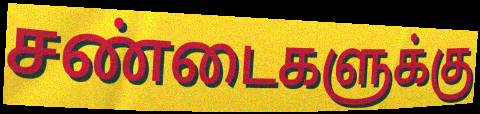
சண்டைகளுக்கு